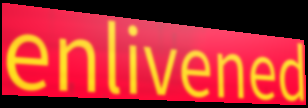
enlivened